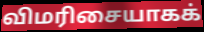
விமரிசையாகக்